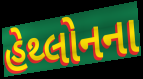
હેથ્લોનના